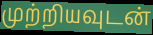
முற்றியவுடன்